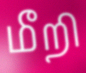
மீறி